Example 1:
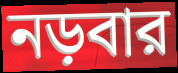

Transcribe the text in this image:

নড়বার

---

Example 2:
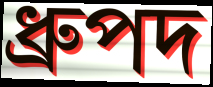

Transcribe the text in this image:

ধ্রুপদ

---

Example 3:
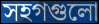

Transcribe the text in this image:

সহগগুলো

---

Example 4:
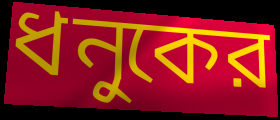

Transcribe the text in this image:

ধনুকের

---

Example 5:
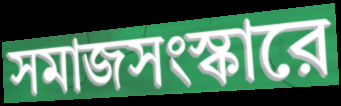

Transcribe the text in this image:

সমাজসংস্কারে